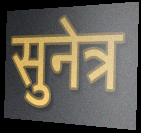
सुनेत्र